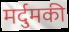
मर्दुमकी